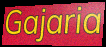
Gajaria